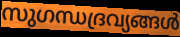
സുഗന്ധദ്രവ്യങ്ങൾ